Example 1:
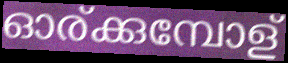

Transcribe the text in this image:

ഓര്ക്കുമ്പോള്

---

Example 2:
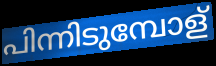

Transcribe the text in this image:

പിന്നിടുമ്പോള്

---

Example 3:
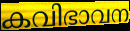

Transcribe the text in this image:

കവിഭാവന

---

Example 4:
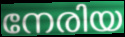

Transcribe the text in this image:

നേരിയ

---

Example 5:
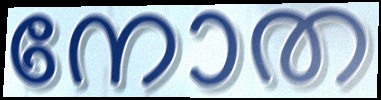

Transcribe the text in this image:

നോത